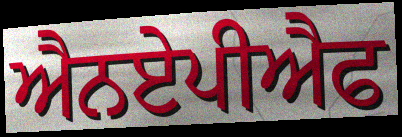
ਐਨਏਪੀਐਫ